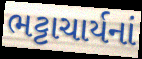
ભટ્ટાચાર્યનાં